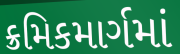
ક્રમિકમાર્ગમાં